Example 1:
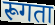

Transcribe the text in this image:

रूगता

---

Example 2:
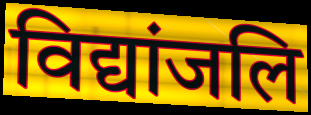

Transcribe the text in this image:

विद्यांजलि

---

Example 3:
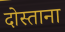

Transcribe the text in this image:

दोस्ताना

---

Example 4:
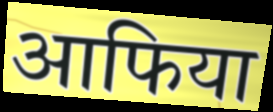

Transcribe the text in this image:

आफिया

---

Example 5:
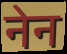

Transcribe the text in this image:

नेन